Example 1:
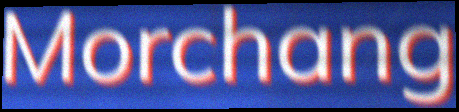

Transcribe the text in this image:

Morchang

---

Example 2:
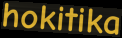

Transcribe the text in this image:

hokitika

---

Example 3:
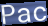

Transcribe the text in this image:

Pac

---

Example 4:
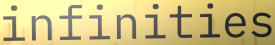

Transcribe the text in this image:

infinities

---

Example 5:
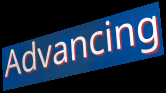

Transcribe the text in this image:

Advancing